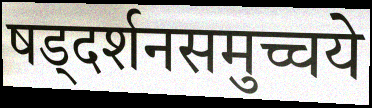
षड्दर्शनसमुच्चये